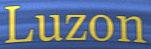
Luzon